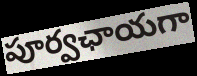
పూర్వఛాయగా